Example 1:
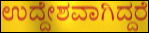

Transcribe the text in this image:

ಉದ್ದೇಶವಾಗಿದ್ದರೆ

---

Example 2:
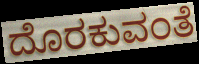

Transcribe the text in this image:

ದೊರಕುವಂತೆ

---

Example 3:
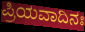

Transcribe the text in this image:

ಪ್ರಿಯವಾದಿನಃ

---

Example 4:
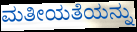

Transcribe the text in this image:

ಮತೀಯತೆಯನ್ನು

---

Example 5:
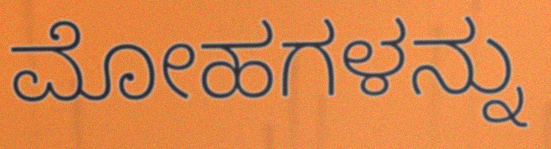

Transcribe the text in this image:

ಮೋಹಗಳನ್ನು